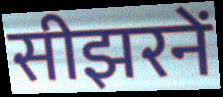
सीझरनें